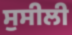
ਸੁਸੀਲੀ